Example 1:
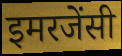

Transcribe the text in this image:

इमरजेंसी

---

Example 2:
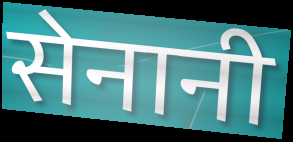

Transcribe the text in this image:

सेनानी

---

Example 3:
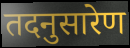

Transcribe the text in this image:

तदनुसारेण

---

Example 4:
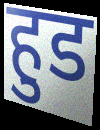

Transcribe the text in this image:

हुड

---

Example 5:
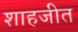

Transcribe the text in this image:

शाहजीत